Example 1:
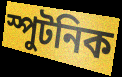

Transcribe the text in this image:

স্পুটনিক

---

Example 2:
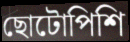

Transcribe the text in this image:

ছোটোপিশি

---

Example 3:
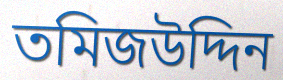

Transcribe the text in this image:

তমিজউদ্দিন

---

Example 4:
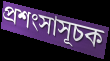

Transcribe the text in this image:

প্রশংসাসূচক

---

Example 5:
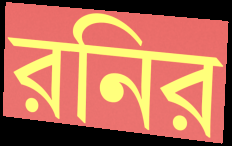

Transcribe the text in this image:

রনির